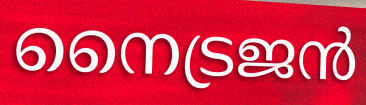
നൈട്രജൻ